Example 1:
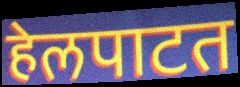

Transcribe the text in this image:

हेलपाटत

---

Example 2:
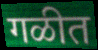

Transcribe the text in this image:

गळीत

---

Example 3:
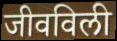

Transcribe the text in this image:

जीवविली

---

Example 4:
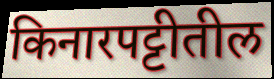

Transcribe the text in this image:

किनारपट्टीतील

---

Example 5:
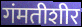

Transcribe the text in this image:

गंमतीशीर